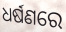
ଧର୍ଷଣରେ